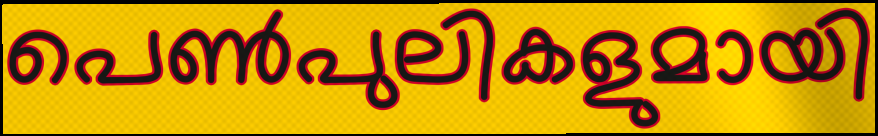
പെൺപുലികളുമായി